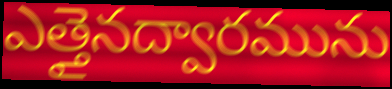
ఎత్తైనద్వారమును